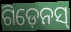
ଗିଡ଼େନସ୍